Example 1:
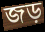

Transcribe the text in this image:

জড়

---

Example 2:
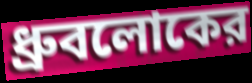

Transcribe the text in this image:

ধ্রুবলোকের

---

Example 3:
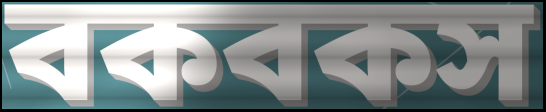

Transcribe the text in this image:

বকবকস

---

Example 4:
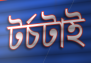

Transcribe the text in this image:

টর্চটাই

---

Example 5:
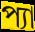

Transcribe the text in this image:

প্যা